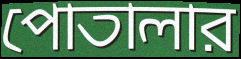
পোতালার